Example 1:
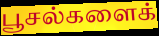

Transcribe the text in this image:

பூசல்களைக்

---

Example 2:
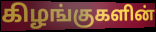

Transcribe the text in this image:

கிழங்குகளின்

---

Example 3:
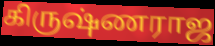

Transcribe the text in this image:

கிருஷ்ணராஜ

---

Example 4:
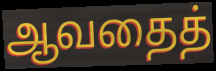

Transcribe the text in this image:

ஆவதைத்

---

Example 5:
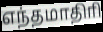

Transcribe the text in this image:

எந்தமாதிரி